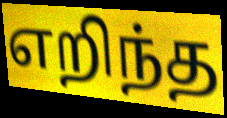
எறிந்த